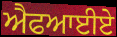
ਐਫਆਈਏ